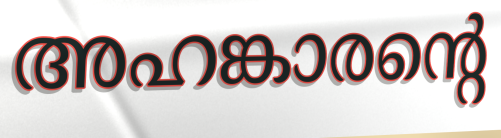
അഹങ്കാരന്റെ